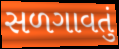
સળગાવતું